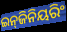
ଇନ୍‍ଜିନିୟରିଂ